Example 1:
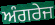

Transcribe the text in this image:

ਅੰਗਰੇਜ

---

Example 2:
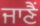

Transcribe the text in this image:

ਜਾਣੈਂ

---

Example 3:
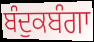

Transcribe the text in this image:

ਬੰਦੁਕਬੰਗਾ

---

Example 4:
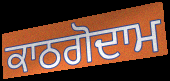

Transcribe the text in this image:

ਕਾਠਗੋਦਾਮ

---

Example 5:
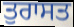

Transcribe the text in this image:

ਤੁਰਾਸਤ